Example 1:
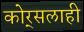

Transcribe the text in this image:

कोर्सलाही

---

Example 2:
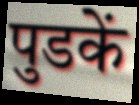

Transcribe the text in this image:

पुडकें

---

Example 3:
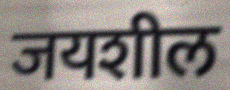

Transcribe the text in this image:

जयशील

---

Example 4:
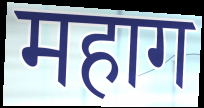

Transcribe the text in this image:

महाग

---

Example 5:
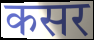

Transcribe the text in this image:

कसर